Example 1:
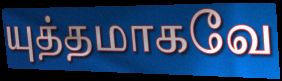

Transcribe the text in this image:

யுத்தமாகவே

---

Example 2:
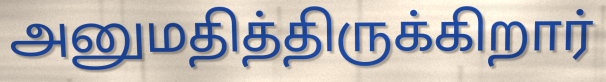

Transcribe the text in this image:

அனுமதித்திருக்கிறார்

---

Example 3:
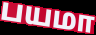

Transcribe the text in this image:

பயமா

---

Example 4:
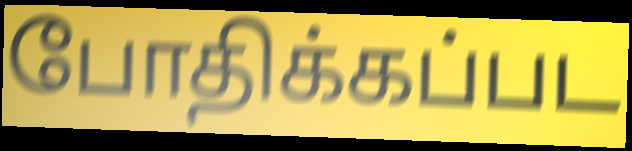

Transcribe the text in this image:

போதிக்கப்பட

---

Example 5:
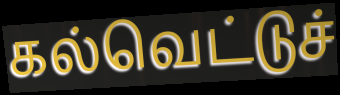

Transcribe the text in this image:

கல்வெட்டுச்